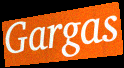
Gargas